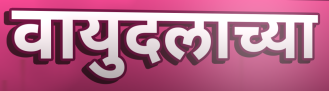
वायुदलाच्या